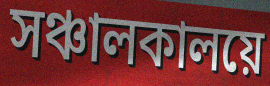
সঞ্চালকালয়ে